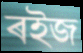
ৰইজ